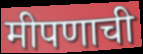
मीपणाची